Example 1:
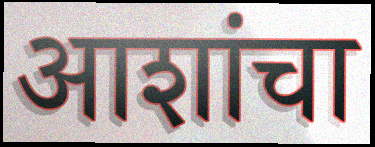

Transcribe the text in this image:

आशांचा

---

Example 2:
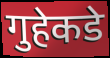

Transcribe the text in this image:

गुहेकडे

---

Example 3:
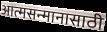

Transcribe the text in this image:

आत्मसन्मानासाठी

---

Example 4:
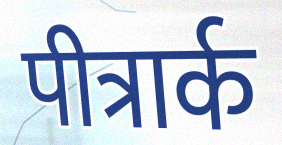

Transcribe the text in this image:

पीत्रार्क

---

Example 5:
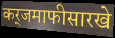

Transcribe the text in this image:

कर्जमाफीसारखे